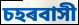
চহৰবাসী